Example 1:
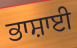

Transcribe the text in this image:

ਭਾਸ਼ਾਈ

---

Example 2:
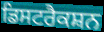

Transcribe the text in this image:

ਡਿਸਟਰੈਕਸ਼ਨ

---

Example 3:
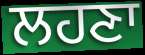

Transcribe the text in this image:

ਲਹਣਾ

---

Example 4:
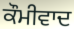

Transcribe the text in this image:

ਕੌਮੀਵਾਦ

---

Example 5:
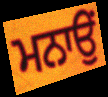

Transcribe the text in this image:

ਮਨਾਉਂ